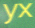
yx